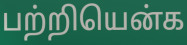
பற்றியென்க